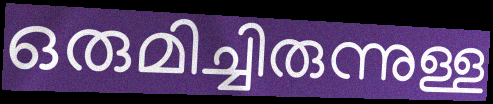
ഒരുമിച്ചിരുന്നുള്ള